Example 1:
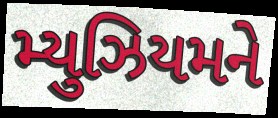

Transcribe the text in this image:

મ્યુઝિયમને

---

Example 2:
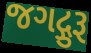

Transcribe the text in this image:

જગદ્ગુરૂ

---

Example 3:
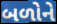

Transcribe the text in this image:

બળોને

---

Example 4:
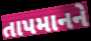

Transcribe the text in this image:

તાપમાનને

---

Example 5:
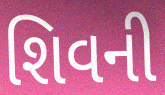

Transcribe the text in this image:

શિવની